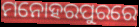
ମନୋହରପୁରରେ